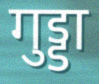
गुड्डा